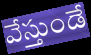
వేస్తుండే